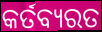
କର୍ତବ୍ୟରତ